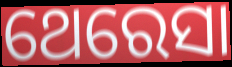
ଥେରେସା